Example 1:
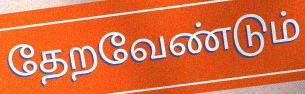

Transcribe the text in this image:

தேறவேண்டும்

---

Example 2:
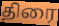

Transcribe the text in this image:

திரை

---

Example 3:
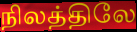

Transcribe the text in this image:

நிலத்திலே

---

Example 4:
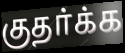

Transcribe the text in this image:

குதர்க்க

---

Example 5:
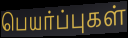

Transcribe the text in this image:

பெயர்ப்புகள்